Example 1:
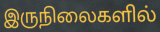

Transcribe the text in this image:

இருநிலைகளில்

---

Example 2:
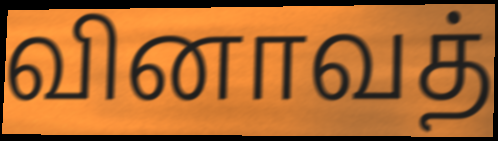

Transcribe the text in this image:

வினாவத்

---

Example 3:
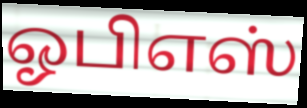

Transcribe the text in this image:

ஓபிஎஸ்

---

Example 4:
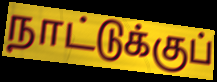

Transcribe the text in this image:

நாட்டுக்குப்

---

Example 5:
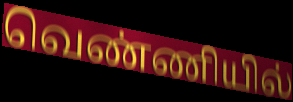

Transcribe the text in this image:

வெண்ணியில்